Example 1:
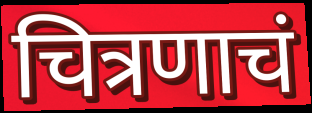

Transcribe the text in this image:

चित्रणाचं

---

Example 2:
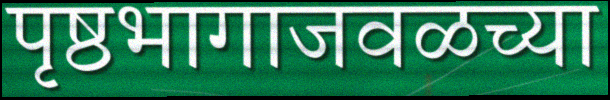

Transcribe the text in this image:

पृष्ठभागाजवळच्या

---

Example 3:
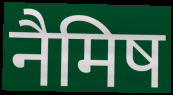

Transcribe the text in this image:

नैमिष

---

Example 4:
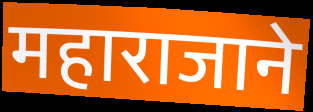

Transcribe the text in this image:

महाराजाने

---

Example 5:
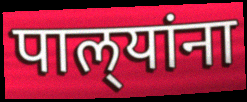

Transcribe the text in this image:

पाल्यांना